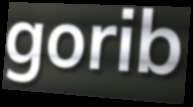
gorib